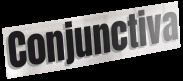
Conjunctiva